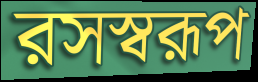
রসস্বরূপ